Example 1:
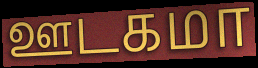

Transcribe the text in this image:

ஊடகமா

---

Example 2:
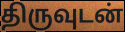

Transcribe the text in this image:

திருவுடன்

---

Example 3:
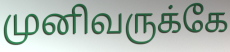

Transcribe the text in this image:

முனிவருக்கே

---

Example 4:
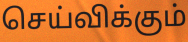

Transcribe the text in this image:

செய்விக்கும்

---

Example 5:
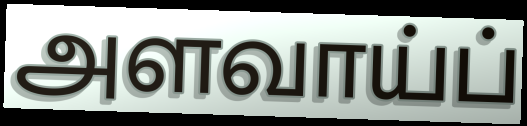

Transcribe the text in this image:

அளவாய்ப்